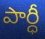
పార్ధీ